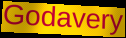
Godavery